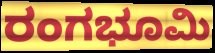
ರಂಗಭೂಮಿ